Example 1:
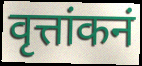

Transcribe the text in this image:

वृत्तांकनं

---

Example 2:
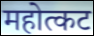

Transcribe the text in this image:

महोत्कट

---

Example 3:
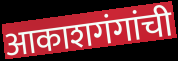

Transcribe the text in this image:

आकाशगंगांची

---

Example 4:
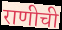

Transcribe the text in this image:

राणीची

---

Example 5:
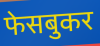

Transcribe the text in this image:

फेसबुकर